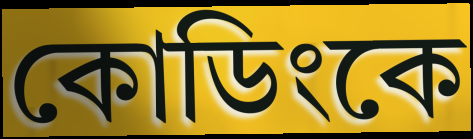
কোডিংকে